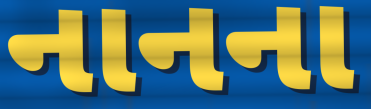
નાનના